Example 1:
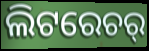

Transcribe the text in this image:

ଲିଟରେଚର୍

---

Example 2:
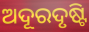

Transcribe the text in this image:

ଅଦୂରଦୃଷ୍ଟି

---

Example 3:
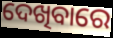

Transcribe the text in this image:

ଦେଖିବାରେ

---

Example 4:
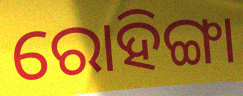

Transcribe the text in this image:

ରୋହିଙ୍ଗା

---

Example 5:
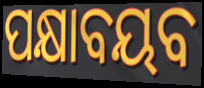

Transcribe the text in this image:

ପକ୍ଷାବୟବ